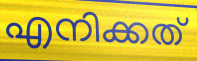
എനിക്കത്